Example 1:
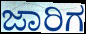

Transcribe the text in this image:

ಜಾರಿಗ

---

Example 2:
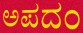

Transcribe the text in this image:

ಅಪದಂ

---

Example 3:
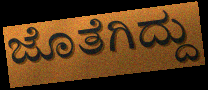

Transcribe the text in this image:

ಜೊತೆಗಿದ್ದು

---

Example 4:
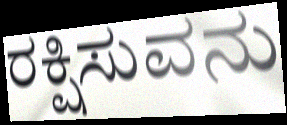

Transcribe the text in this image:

ರಕ್ಷಿಸುವನು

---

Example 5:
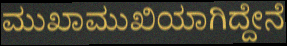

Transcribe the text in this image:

ಮುಖಾಮುಖಿಯಾಗಿದ್ದೇನೆ